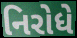
નિરોધે